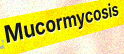
Mucormycosis